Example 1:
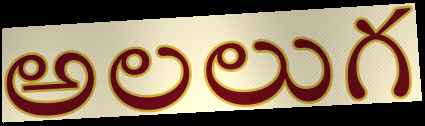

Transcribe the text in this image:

అలలుగ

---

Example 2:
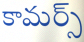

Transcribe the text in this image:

కామర్స్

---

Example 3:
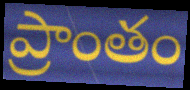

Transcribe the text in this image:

ప్రాంతం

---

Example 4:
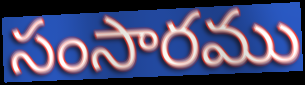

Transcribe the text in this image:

సంసారము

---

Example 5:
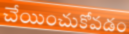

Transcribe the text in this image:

చేయించుకోవడం